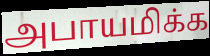
அபாயமிக்க